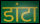
डांटा